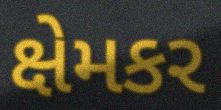
ક્ષેમકર